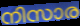
നിസാര